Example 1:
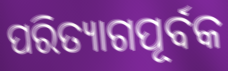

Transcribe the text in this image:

ପରିତ୍ୟାଗପୂର୍ବକ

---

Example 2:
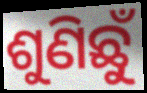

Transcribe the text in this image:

ଶୁଣିଛୁଁ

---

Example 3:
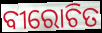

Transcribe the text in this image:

ବୀରୋଚିତ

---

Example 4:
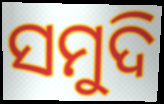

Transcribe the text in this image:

ସମୁଦି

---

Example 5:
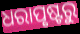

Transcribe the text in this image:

ଧରାପୃଷ୍ଟରୁ